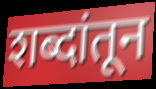
शब्दांतून